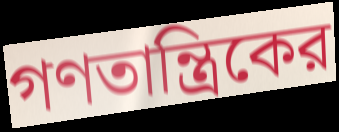
গণতান্ত্রিকের